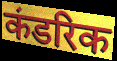
कंडरिक